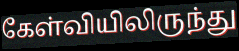
கேள்வியிலிருந்து